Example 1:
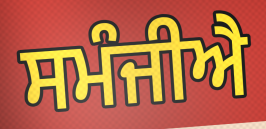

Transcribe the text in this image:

ਸਮੰਜੀਐ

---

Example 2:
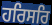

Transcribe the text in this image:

ਹਰਿਸਰਿ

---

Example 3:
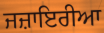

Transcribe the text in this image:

ਜਜ਼ਾਇਰੀਆ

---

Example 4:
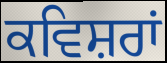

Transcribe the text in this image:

ਕਵਿਸ਼ਰਾਂ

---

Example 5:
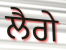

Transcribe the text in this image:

ਲੈਗੇ